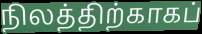
நிலத்திற்காகப்